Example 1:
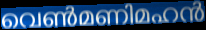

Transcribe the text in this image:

വെൺമണിമഹൻ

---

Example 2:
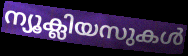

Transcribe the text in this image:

ന്യൂക്ലിയസുകൾ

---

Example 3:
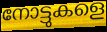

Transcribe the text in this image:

നോട്ടുകളെ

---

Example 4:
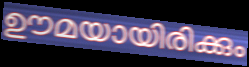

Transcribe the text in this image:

ഊമയായിരിക്കും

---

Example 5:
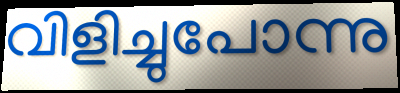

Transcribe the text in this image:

വിളിച്ചുപോന്നു